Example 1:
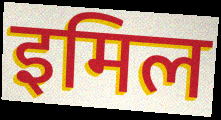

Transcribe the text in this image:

इमिल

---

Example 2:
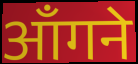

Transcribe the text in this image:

आँगने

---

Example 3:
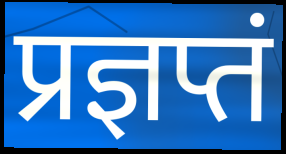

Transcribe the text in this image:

प्रज्ञप्तं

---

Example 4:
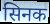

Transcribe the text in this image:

सिनक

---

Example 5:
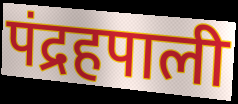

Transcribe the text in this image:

पंद्रहपाली